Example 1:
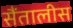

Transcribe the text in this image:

सैंतालीस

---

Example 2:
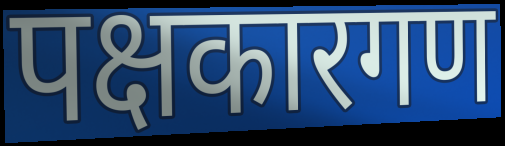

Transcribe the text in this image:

पक्षकारगण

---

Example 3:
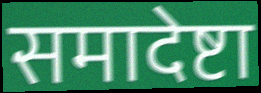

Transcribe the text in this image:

समादेष्टा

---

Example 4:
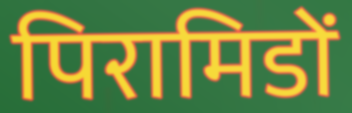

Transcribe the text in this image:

पिरामिडों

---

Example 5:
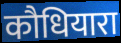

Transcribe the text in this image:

कौधियारा